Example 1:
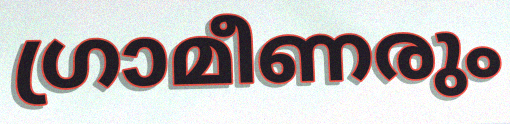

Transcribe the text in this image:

ഗ്രാമീണരും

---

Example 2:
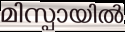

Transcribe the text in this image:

മിസ്പായിൽ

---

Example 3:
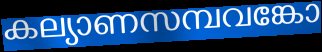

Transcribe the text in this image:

കല്യാണസമ്പവങ്കോ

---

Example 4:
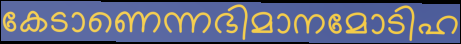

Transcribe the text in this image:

കേടാണെന്നഭിമാനമോടിഹ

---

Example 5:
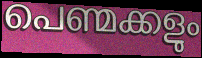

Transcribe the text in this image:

പെണ്മക്കളും